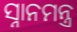
ସ୍ନାନମନ୍ତ୍ର